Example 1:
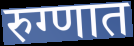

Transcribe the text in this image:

रुग्णात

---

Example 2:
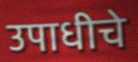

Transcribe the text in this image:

उपाधीचे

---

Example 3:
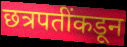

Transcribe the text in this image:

छत्रपतींकडून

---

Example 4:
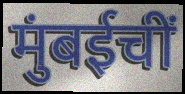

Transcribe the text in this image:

मुंबईचीं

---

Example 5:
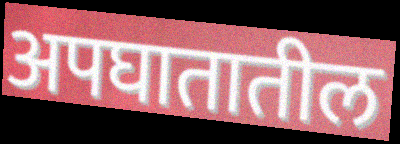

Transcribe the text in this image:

अपघातातील